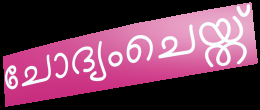
ചോദ്യംചെയ്ത്